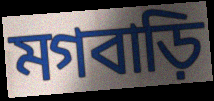
মগবাড়ি